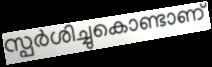
സ്പർശിച്ചുകൊണ്ടാണ്